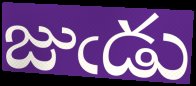
జుఁడు